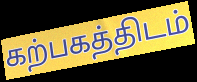
கற்பகத்திடம்